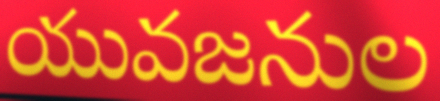
యువజనుల